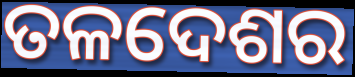
ତଳଦେଶର